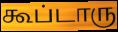
கூப்டாரு